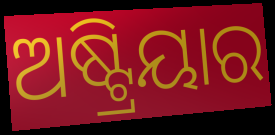
ଅଷ୍ଟ୍ରିୟାର